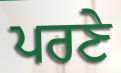
ਪਰਣੇ